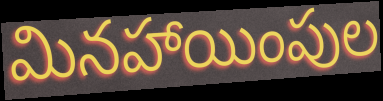
మినహాయింపుల